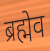
ब्रह्मेव